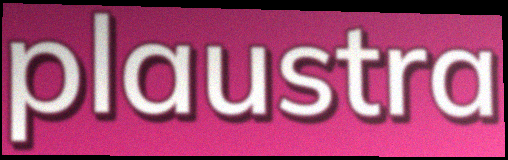
plaustra